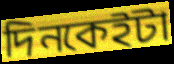
দিনকেইটা